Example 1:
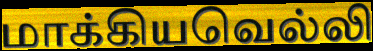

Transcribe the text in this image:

மாக்கியவெல்லி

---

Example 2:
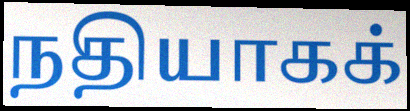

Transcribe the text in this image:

நதியாகக்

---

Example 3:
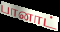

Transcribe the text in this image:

பானாட்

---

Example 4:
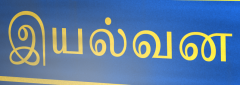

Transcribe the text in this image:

இயல்வன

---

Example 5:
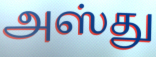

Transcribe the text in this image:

அஸ்து